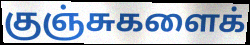
குஞ்சுகளைக்